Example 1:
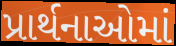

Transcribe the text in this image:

પ્રાર્થનાઓમાં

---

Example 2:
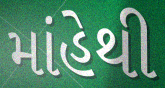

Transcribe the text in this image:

માંહેથી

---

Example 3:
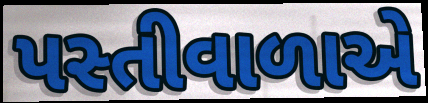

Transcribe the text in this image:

પસ્તીવાળાએ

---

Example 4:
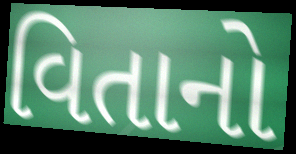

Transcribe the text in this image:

વિતાનો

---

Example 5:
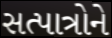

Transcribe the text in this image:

સત્પાત્રોને